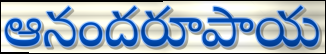
ఆనందరూపాయ